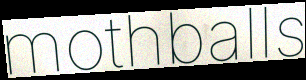
mothballs